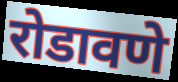
रोडावणे